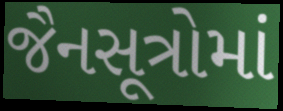
જૈનસૂત્રોમાં